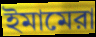
ইমামেরা